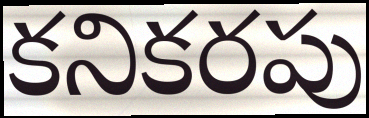
కనికరపు